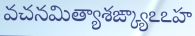
వచనమిత్యాశఙ్క్యాఽఽహ